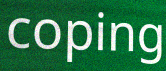
coping